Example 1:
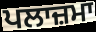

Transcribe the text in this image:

ਪਲਾਜ਼ਮਾ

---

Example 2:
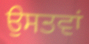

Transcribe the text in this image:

ਉਸਤਵਾਂ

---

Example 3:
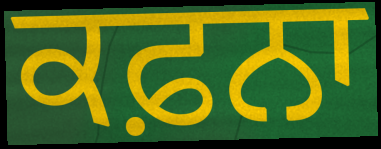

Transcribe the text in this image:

ਕਫ਼ਨਾ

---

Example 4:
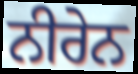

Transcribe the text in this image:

ਨੀਰੇਨ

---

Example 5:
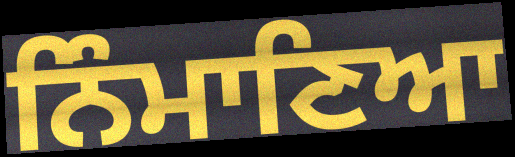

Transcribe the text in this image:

ਨਿੰਮਾਣਿਆ